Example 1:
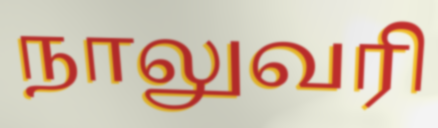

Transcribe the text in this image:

நாலுவரி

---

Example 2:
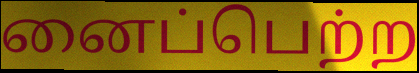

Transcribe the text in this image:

னைப்பெற்ற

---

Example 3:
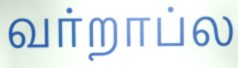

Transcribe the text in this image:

வர்றாப்ல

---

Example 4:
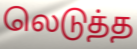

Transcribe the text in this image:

லெடுத்த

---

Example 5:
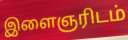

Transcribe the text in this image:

இளைஞரிடம்